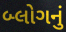
બ્લોગનું